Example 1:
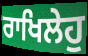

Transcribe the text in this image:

ਰਾਖਿਲੇਹੁ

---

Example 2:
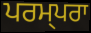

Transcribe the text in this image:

ਪਰਮ੍ਪਰਾ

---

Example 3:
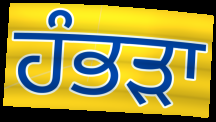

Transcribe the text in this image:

ਹੰਭੜਾ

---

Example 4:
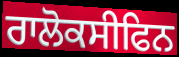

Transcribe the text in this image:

ਰਾਲੋਕਸੀਫਿਨ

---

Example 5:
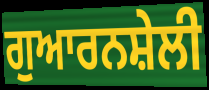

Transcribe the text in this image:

ਗੁਆਰਨਸ਼ੇਲੀ